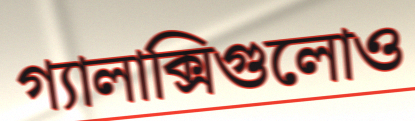
গ্যালাক্সিগুলোও